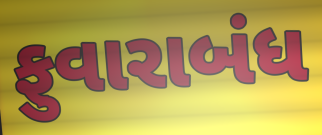
ફુવારાબંધ